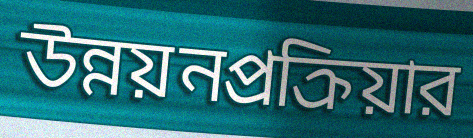
উন্নয়নপ্রক্রিয়ার